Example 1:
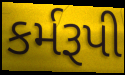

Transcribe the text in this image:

કર્મરૂપી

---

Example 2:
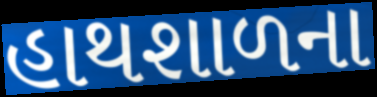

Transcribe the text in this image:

હાથશાળના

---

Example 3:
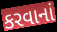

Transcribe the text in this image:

કરવાનાં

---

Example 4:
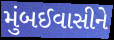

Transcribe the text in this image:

મુંબઈવાસીને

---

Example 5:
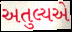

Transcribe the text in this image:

અતુલ્યએ